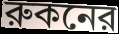
রুকনের